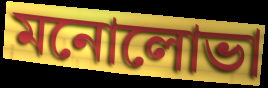
মনোলোভা